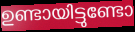
ഉണ്ടായിട്ടുണ്ടോ